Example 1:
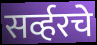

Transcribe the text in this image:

सर्व्हरचे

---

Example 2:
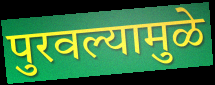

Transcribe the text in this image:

पुरवल्यामुळे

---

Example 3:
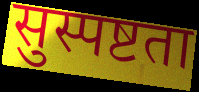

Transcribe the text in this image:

सुस्पष्टता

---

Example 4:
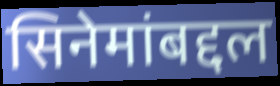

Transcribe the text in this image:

सिनेमांबद्दल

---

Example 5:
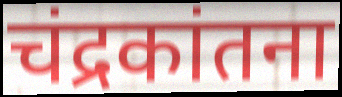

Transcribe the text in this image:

चंद्रकांतना